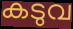
കടുവ